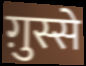
ग़ुस्से